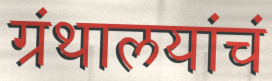
ग्रंथालयांचं